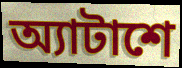
অ্যাটাশে